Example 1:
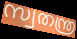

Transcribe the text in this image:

സ്വതന്ത്ര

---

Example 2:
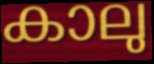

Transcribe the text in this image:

കാലു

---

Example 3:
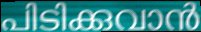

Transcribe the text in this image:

പിടിക്കുവാൻ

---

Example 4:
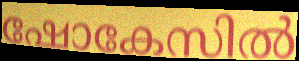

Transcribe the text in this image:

ഷോകേസിൽ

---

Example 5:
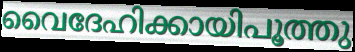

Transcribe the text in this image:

വൈദേഹിക്കായിപൂത്തു